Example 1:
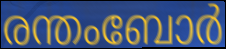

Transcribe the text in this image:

രന്തംബോർ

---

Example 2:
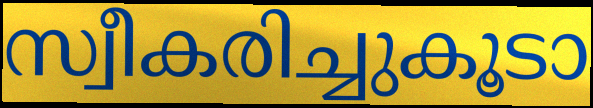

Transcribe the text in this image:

സ്വീകരിച്ചുകൂടാ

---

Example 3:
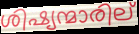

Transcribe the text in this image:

ശിഷ്യന്മാരില്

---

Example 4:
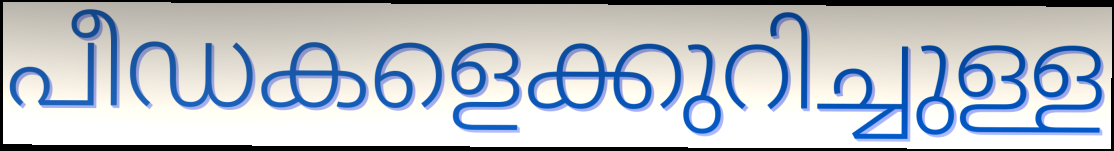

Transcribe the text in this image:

പീഡകളെക്കുറിച്ചുള്ള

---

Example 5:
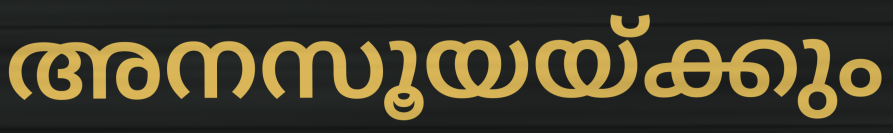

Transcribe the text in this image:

അനസൂയയ്ക്കും